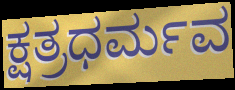
ಕ್ಷತ್ರಧರ್ಮವ